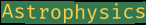
Astrophysics